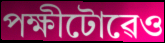
পক্ষীটোৱেও